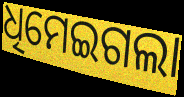
ଧିମେଇଗଲା